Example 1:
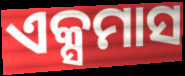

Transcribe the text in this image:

ଏକ୍ସମାସ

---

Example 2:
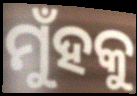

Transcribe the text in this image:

ମୁଁହକୁ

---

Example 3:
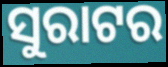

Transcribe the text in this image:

ସୁରାଟର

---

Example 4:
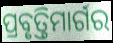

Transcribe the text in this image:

ପ୍ରବୃତ୍ତିମାର୍ଗର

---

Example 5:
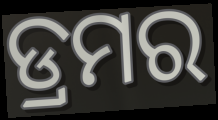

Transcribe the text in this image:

ଡ୍ରମର